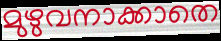
മുഴുവനാക്കാതെ